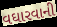
વઘારવાની